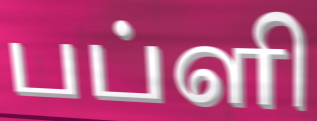
பப்ளி